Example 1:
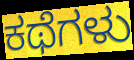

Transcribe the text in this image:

ಕಥೆಗಳು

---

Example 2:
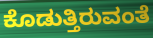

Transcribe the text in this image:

ಕೊಡುತ್ತಿರುವಂತೆ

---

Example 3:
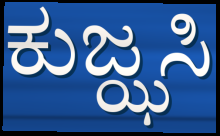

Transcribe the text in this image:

ಕುಜ್ಝಸಿ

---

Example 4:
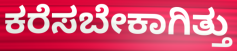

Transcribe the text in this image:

ಕರೆಸಬೇಕಾಗಿತ್ತು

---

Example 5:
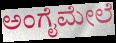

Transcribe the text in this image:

ಅಂಗೈಮೇಲೆ